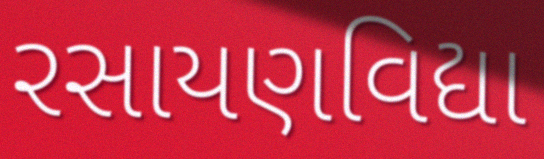
રસાયણવિદ્યા